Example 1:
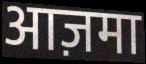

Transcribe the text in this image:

आज़मा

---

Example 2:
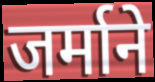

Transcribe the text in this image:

जर्माने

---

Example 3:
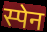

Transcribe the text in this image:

स्पेन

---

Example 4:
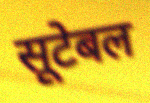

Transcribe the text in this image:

सूटेबल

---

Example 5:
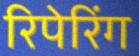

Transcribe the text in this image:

रिपेरिंग